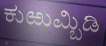
ಕುಱುಮ್ಬಿಡಿ